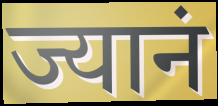
ज्यानं